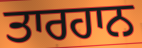
ਤਾਰਹਾਨ